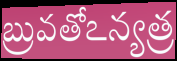
బ్రువతోఽన్యత్ర